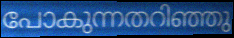
പോകുന്നതറിഞ്ഞു